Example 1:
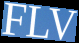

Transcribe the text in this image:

FLV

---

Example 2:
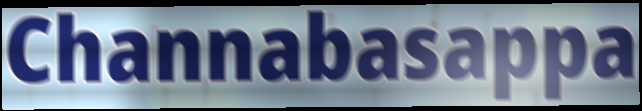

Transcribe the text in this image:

Channabasappa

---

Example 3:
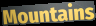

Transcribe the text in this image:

Mountains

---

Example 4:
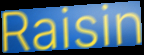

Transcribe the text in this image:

Raisin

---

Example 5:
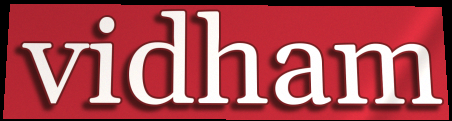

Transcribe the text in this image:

vidham